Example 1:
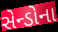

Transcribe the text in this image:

સેન્ડોના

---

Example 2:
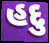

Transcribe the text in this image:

હદુ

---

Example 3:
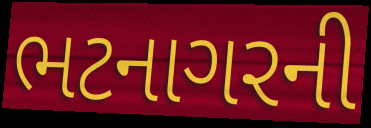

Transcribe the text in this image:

ભટનાગરની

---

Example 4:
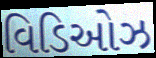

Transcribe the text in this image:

વિડિઓઝ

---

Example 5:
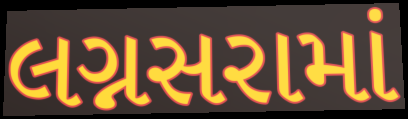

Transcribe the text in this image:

લગ્નસરામાં